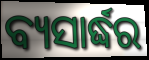
ବ୍ୟସାର୍ଦ୍ଧର